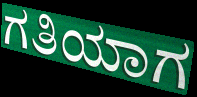
ಗತಿಯಾಗ